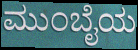
ಮುಂಬೈಯ